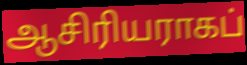
ஆசிரியராகப்